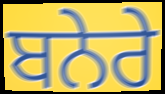
ਬਨੇਰੇ